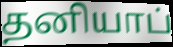
தனியாப்